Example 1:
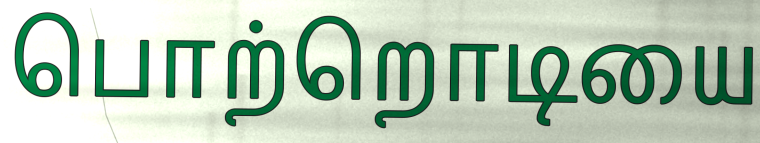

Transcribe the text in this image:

பொற்றொடியை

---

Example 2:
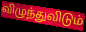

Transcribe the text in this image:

விழுந்துவிடும்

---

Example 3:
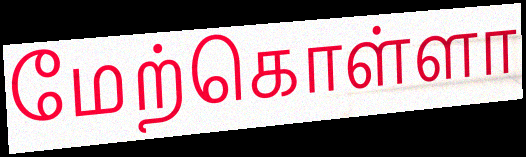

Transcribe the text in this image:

மேற்கொள்ளா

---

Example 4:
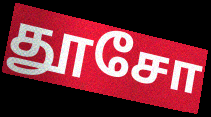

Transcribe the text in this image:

தூசோ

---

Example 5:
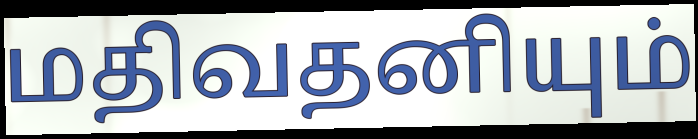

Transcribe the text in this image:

மதிவதனியும்